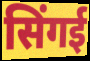
सिंगई